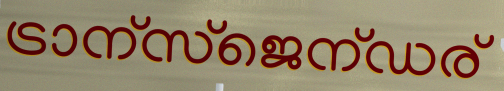
ട്രാന്സ്ജെന്ഡര്